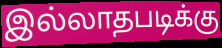
இல்லாதபடிக்கு